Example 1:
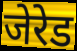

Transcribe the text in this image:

जेरेड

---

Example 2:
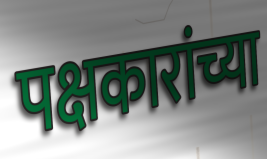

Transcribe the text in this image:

पक्षकारांच्या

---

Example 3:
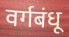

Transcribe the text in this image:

वर्गबंधू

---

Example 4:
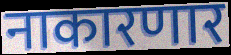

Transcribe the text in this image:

नाकारणार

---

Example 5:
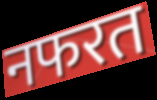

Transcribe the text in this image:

नफरत